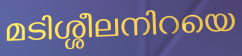
മടിശ്ശീലനിറയെ